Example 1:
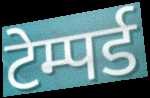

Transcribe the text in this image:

टेम्पर्ड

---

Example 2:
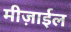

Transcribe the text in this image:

मीज़ाईल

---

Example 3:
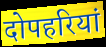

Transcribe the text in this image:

दोपहरियां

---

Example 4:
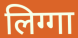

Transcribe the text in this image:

लिग्गा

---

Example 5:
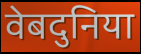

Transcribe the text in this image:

वेबदुनिया